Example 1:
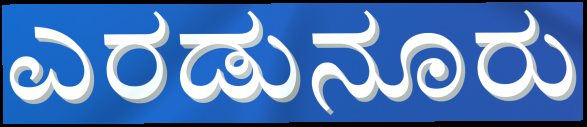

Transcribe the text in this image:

ಎರಡುನೂರು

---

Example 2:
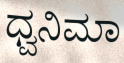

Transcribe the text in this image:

ಧ್ವನಿಮಾ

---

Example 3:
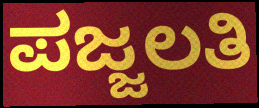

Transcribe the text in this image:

ಪಜ್ಜಲತಿ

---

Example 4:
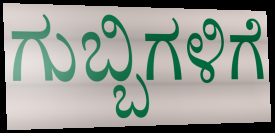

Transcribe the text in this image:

ಗುಬ್ಬಿಗಳಿಗೆ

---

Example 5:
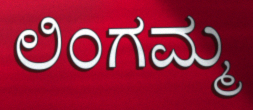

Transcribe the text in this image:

ಲಿಂಗಮ್ಮ